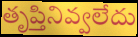
తృప్తినివ్వలేదు